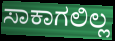
ಸಾಕಾಗಲಿಲ್ಲ